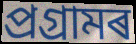
প্ৰগ্ৰামৰ